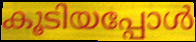
കൂടിയപ്പോൾ